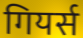
गियर्स